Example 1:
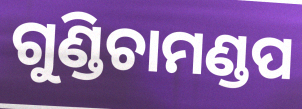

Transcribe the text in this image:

ଗୁଣ୍ଡିଚାମଣ୍ଡପ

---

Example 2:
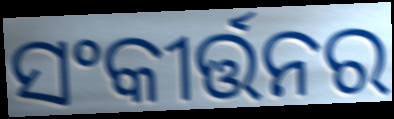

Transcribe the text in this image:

ସଂକୀର୍ତ୍ତନର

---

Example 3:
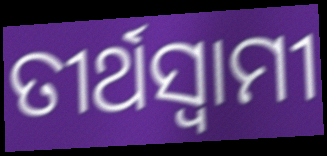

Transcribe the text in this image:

ତୀର୍ଥସ୍ୱାମୀ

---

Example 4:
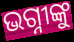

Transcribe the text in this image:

ଭଗ୍ନୀଙ୍କୁ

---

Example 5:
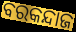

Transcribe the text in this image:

ବରକନ୍ଦାଜ